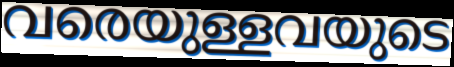
വരെയുള്ളവയുടെ